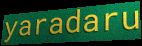
yaradaru